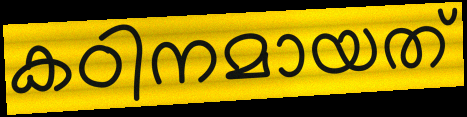
കഠിനമായത്